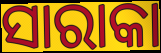
ସାରାକା